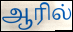
ஆரில்